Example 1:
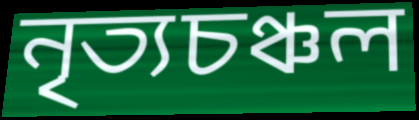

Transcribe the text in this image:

নৃত্যচঞ্চল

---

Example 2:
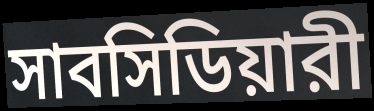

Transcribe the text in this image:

সাবসিডিয়ারী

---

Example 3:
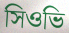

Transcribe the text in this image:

সিওভি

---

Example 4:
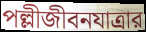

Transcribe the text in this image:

পল্লীজীবনযাত্রার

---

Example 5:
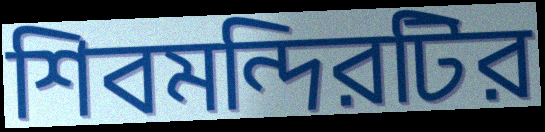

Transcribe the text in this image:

শিবমন্দিরটির